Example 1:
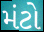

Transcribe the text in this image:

મંટો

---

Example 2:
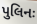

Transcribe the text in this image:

પુલિનઃ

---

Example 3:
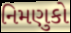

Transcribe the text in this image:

નિમણુકો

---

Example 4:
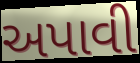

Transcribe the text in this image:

અપાવી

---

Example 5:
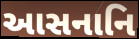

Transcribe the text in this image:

આસનાનિ